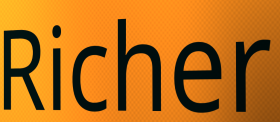
Richer